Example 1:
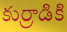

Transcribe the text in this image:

కుర్రాడికి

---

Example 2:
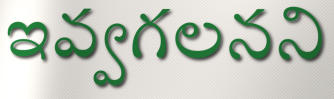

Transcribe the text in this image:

ఇవ్వగలనని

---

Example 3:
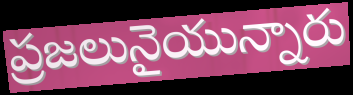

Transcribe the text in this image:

ప్రజలునైయున్నారు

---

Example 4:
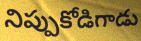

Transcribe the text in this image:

నిప్పుకోడిగాడు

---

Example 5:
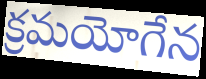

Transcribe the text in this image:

క్రమయోగేన